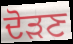
ਦੋੜਣ